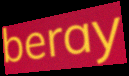
beray